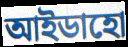
আইডাহো